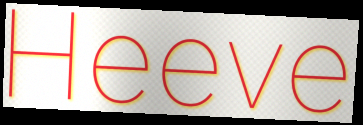
Heeve